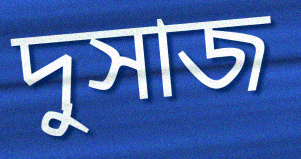
দুসাজ